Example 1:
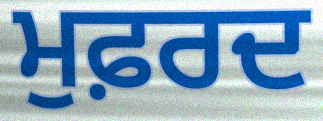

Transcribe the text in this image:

ਮੁਫ਼ਰਦ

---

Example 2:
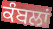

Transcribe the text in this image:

ਕੰਬਲਾਂ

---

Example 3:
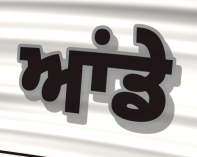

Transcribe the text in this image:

ਆਂਡੇ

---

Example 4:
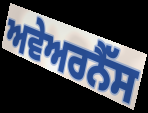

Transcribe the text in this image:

ਅਵੇਅਰਨੈੱਸ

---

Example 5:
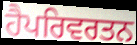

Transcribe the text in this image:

ਹੈਪਰਿਵਰਤਨ